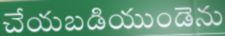
చేయబడియుండెను